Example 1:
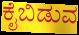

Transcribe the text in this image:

ಕೈಬಿಡುವ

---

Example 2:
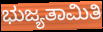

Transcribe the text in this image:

ಭುಜ್ಯತಾಮಿತಿ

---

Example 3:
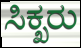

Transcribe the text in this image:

ಸಿಕ್ಖರು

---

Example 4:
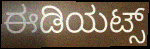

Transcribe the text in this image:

ಈಡಿಯಟ್ಸ್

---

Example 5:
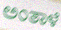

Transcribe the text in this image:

ಅಂತಾಳೆ